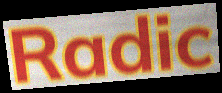
Radic